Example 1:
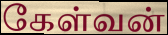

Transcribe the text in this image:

கேள்வன்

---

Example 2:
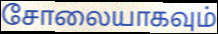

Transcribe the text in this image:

சோலையாகவும்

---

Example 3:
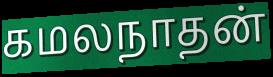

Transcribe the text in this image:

கமலநாதன்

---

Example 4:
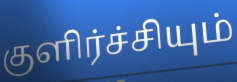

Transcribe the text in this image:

குளிர்ச்சியும்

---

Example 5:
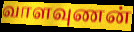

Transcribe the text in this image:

வாளவுணன்